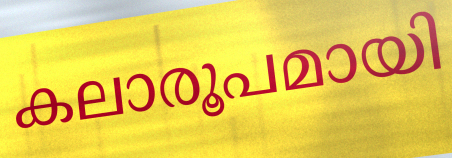
കലാരൂപമായി